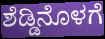
ಶೆಡ್ಡಿನೊಳಗೆ